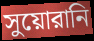
সুয়োরানি